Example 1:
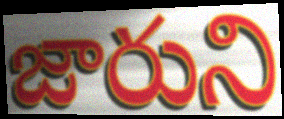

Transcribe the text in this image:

జారుని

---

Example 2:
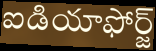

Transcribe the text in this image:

ఐడియాఫోర్జ్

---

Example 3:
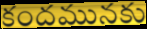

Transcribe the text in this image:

కందమునకు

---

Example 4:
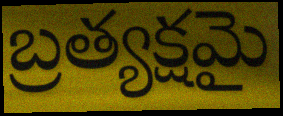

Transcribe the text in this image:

బ్రత్యక్షమై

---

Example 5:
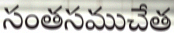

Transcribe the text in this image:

సంతసముచేత